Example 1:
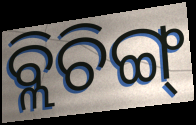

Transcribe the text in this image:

ବ୍ଲିଚିଙ୍ଗ୍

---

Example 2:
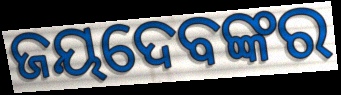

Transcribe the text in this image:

ଜୟଦେବଙ୍କର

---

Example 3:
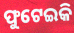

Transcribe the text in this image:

ଫୁଟେଇକି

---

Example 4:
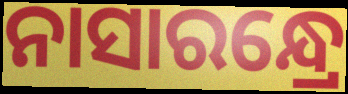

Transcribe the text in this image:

ନାସାରନ୍ଧ୍ରେ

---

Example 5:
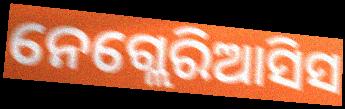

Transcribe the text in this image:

ନେଗ୍ଲେରିଆସିସ